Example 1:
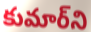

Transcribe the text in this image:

కుమార్‌ని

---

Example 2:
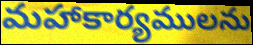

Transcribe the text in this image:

మహాకార్యములను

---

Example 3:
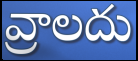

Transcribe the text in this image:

వ్రాలదు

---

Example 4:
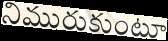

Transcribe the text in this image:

నిమురుకుంటూ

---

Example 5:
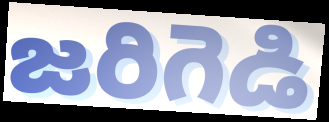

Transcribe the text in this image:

జరిగెడి